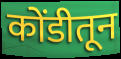
कोंडीतून